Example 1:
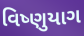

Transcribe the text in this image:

વિષ્ણુયાગ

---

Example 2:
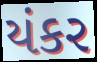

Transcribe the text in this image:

યંકર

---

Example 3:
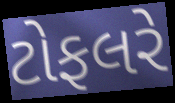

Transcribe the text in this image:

ટોફલરે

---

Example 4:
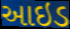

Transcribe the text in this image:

આઇડ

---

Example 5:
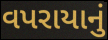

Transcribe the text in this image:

વપરાયાનું